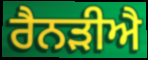
ਰੈਨੜੀਐ